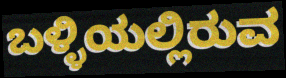
ಬಳ್ಳಿಯಲ್ಲಿರುವ